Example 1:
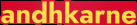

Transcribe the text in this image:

andhkarne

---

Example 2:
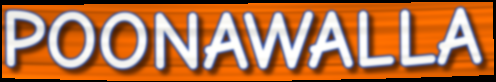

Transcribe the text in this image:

POONAWALLA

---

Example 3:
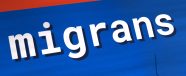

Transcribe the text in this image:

migrans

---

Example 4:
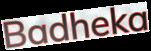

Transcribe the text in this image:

Badheka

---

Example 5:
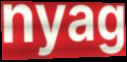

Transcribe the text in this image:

nyag